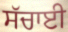
ਸੱਚਾਈ